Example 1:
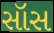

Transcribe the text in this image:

સૉસ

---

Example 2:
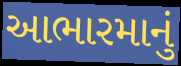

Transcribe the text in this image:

આભારમાનું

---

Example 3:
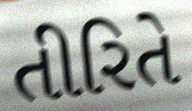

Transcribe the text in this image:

તીરિતે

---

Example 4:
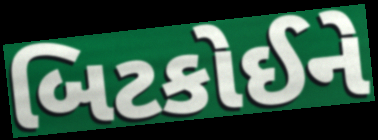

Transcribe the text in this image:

બિટકોઈને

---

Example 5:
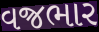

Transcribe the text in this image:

વજ્રભાર